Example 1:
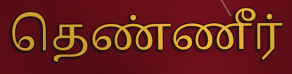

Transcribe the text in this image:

தெண்ணீர்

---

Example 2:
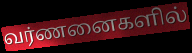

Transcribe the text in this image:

வர்ணனைகளில்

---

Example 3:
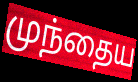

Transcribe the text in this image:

முந்தைய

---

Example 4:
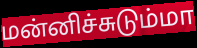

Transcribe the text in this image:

மன்னிச்சுடும்மா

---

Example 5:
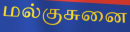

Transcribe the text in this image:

மல்குசுனை